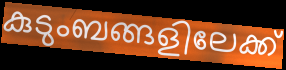
കുടുംബങ്ങളിലേക്ക്